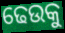
ଢେଉକୁ